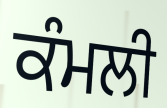
ਕੰਮਲੀ